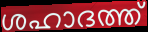
ശഹാദത്ത്